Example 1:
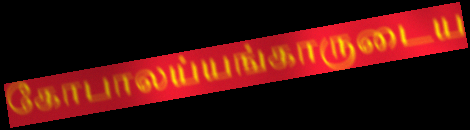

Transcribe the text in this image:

கோபாலய்யங்காருடைய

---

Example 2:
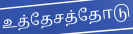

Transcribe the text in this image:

உத்தேசத்தோடு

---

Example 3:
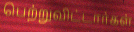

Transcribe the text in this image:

பெற்றுவிட்டார்கள்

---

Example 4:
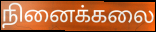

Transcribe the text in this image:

நினைக்கலை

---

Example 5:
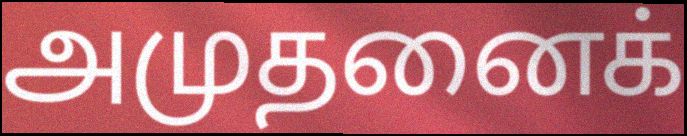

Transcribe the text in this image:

அமுதனைக்